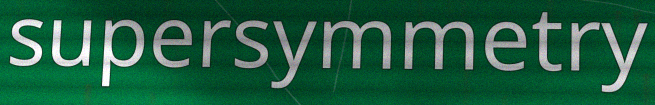
supersymmetry